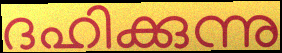
ദഹിക്കുന്നു